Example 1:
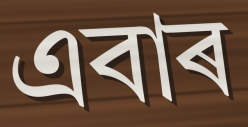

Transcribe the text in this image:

এবাৰ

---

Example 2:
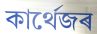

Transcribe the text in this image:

কাৰ্থেজৰ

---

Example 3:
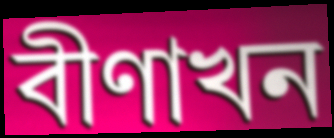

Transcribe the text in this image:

বীণাখন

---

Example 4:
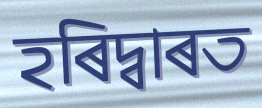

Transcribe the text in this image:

হৰিদ্বাৰত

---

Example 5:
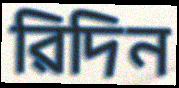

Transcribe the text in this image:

ৱিদিন